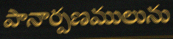
పానార్పణములును